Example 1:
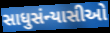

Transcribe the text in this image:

સાધુસંન્યાસીઓ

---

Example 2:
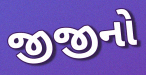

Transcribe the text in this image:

જીજીનો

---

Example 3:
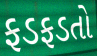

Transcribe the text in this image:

ફડફડતો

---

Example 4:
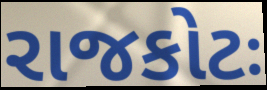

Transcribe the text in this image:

રાજકોટઃ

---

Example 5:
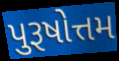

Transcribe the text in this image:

પુરૂષોત્તમ